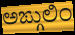
ಅಙ್ಗುಲಿಂ